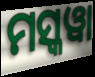
ମସ୍କୱା